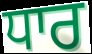
ਧਾਰ